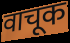
वाचूक